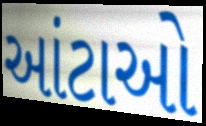
આંટાઓ